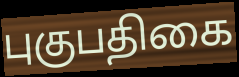
புகுபதிகை